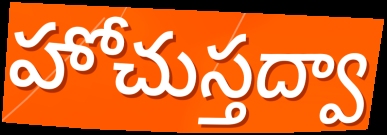
హోచుస్తద్వా